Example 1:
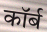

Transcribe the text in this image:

कॉर्ब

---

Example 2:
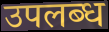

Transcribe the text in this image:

उपलब्‍ध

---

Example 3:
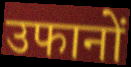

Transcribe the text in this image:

उफानों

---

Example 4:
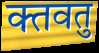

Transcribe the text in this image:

क्तवतु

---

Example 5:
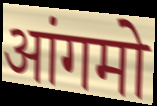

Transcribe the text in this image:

आंगमो